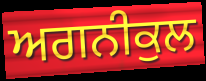
ਅਗਨੀਕੁਲ